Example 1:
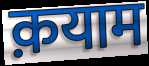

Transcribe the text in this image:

क़याम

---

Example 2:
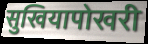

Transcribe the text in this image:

सुखियापोखरी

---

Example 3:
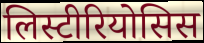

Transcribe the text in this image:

लिस्टीरियोसिस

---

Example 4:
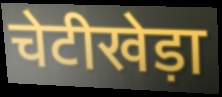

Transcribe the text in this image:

चेटीखेड़ा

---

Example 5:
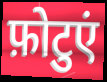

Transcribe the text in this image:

फ़ोटुएं